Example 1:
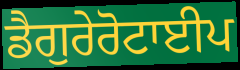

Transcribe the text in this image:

ਡੈਗੁਰੇਰੋਟਾਈਪ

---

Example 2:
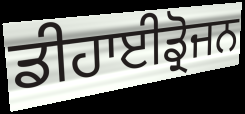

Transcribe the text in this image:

ਡੀਹਾਈਡ੍ਰੋਜਨ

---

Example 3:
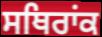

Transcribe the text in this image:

ਸਥਿਰਾਂਕ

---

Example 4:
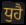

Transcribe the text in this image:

ਧੁਹੈ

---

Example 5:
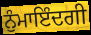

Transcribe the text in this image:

ਨੁੰਮਾਇੰਦਗੀ